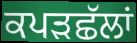
ਕਪੜਛੱਲਾਂ